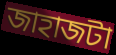
জাহাজটা